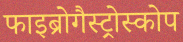
फाइब्रोगैस्ट्रोस्कोप